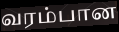
வரம்பான